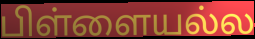
பிள்ளையல்ல